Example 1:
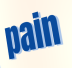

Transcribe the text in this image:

pain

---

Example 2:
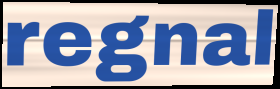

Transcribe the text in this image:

regnal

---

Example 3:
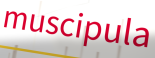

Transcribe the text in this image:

muscipula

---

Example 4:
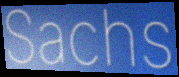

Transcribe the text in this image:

Sachs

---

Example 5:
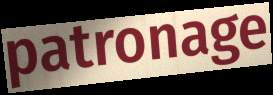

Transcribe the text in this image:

patronage